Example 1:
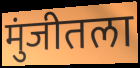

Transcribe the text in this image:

मुंजीतला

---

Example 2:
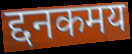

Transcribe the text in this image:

द्दनकमय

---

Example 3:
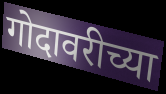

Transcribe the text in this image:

गोदावरीच्या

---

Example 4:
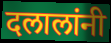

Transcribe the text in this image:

दलालांनी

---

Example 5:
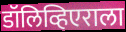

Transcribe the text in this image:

डॉलिव्हिएराला